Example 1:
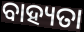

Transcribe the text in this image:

ବାହ୍ୟତା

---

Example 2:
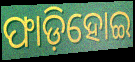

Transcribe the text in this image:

ଫାଡ଼ିହୋଇ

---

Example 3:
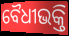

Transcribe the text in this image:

ବୈଧୀଭକ୍ତି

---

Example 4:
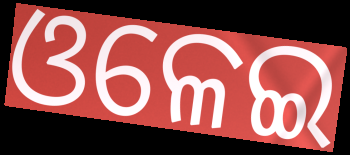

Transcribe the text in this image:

ଓଳେଇ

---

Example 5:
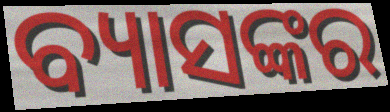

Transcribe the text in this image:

ବ୍ୟାସଙ୍କର